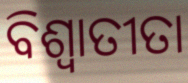
ବିଶ୍ଵାତୀତା